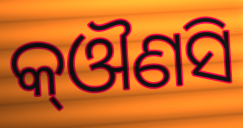
କ୍ଔଣସି